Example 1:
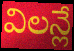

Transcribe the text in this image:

విలన్లే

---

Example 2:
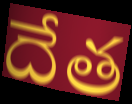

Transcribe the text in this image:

దేత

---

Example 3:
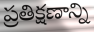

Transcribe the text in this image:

ప్రతిక్షణాన్ని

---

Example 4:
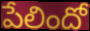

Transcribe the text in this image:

పేలిందో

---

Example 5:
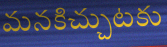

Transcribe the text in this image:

మనకిచ్చుటకు